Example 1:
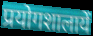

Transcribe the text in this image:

प्रयोगशालायें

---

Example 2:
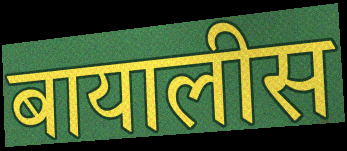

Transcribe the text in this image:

बायालीस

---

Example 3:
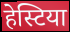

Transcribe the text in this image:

हेस्टिया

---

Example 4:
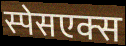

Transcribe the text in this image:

स्पेसएक्स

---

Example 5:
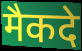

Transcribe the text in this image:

मैकदे